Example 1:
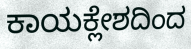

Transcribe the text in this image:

ಕಾಯಕ್ಲೇಶದಿಂದ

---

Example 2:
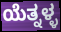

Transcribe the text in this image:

ಯೆತ್ನಳ್ಳ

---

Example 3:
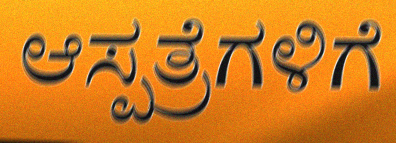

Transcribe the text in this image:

ಆಸ್ಪತ್ರೆಗಳಿಗೆ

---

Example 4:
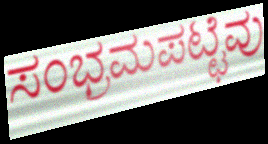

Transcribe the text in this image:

ಸಂಭ್ರಮಪಟ್ಟೆವು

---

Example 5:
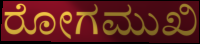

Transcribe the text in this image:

ರೋಗಮುಖಿ